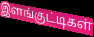
இளங்குட்டிகள்